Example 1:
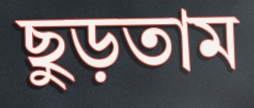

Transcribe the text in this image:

ছুড়তাম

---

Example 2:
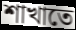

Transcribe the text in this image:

শাখাতে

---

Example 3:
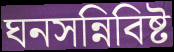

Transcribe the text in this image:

ঘনসন্নিবিষ্ট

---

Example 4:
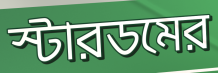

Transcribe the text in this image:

স্টারডমের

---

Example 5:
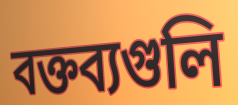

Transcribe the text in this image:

বক্তব্যগুলি